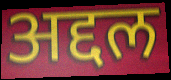
अद्दल